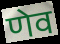
णेव